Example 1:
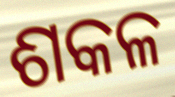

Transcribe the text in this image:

ଶକଳ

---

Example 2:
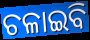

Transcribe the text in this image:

ଚଳାଇବି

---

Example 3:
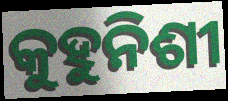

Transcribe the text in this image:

କୁହୁନିଶୀ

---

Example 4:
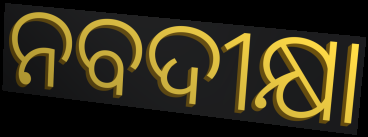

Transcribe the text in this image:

ନବଦୀକ୍ଷା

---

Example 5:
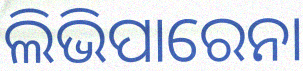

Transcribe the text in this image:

ଲିଭିପାରେନା